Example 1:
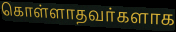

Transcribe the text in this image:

கொள்ளாதவர்களாக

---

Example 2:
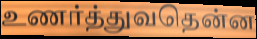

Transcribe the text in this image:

உணர்த்துவதென்ன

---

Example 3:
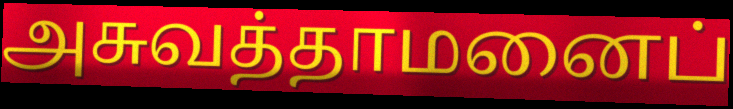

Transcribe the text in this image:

அசுவத்தாமனைப்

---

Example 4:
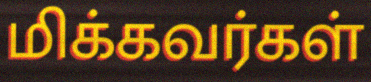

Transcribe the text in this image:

மிக்கவர்கள்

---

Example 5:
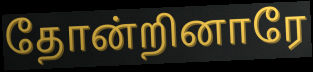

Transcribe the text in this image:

தோன்றினாரே